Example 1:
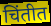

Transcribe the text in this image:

चिंतीत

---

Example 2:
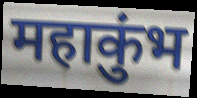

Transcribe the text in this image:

महाकुंभ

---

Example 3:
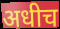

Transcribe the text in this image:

अधीच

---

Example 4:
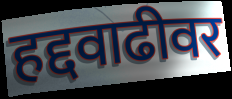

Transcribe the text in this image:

हद्दवाढीवर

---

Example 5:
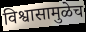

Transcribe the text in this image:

विश्वासामुळेच